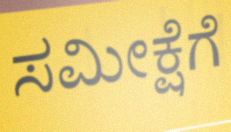
ಸಮೀಕ್ಷೆಗೆ